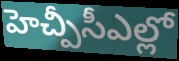
హెచ్పీసీఎల్లో